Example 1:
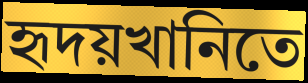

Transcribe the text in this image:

হৃদয়খানিতে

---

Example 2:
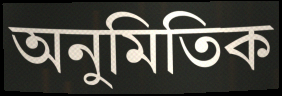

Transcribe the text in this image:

অনুমিতিক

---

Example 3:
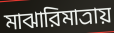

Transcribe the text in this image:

মাঝারিমাত্রায়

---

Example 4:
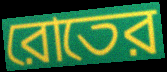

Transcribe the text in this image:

রোতের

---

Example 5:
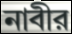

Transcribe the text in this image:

নাবীর